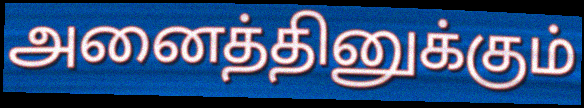
அனைத்தினுக்கும்